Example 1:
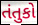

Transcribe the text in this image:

તંતુકો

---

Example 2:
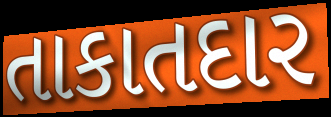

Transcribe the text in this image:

તાકાતદાર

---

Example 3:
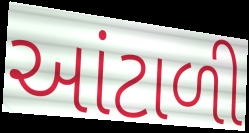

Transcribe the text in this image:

આંટાળી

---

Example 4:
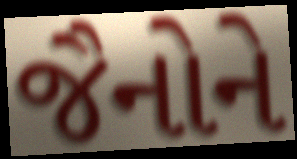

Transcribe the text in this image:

જૈનોને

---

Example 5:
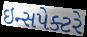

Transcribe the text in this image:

ઇન્સપેક્ટરે